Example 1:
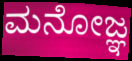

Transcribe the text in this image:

ಮನೋಜ್ಞ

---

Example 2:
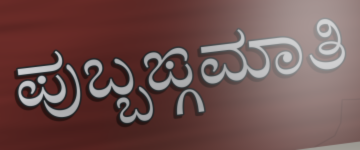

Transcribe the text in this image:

ಪುಬ್ಬಙ್ಗಮಾತಿ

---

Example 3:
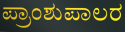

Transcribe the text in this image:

ಪ್ರಾಂಶುಪಾಲರ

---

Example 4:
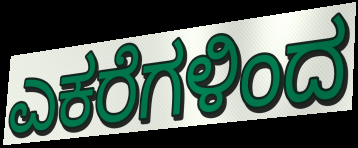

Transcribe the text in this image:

ಎಕರೆಗಳಿಂದ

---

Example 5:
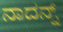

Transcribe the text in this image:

ನಾದನ್ನ್